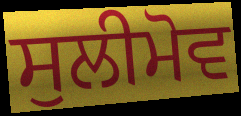
ਸੁਲੀਮੋਵ